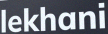
lekhani